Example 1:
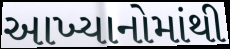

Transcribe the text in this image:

આખ્યાનોમાંથી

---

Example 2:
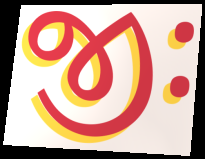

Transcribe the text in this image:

જીઃ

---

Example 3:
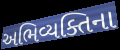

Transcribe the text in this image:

અભિવ્યક્તિના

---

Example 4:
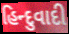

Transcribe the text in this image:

હિન્દુવાદી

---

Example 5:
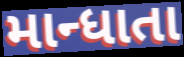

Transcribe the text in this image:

માન્ધાતા